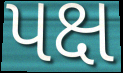
પક્ષ